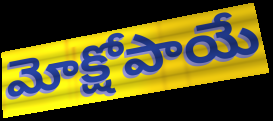
మోక్షోపాయే